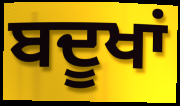
ਬਦੂਖਾਂ